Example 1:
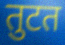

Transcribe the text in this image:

तुटत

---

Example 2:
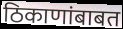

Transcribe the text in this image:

ठिकाणांबाबत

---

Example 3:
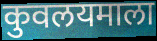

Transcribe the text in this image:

कुवलयमाला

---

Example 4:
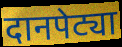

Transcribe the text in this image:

दानपेट्या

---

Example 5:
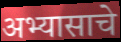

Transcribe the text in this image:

अभ्यासाचे